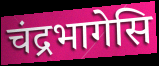
चंद्रभागेसि